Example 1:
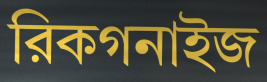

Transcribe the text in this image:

রিকগনাইজ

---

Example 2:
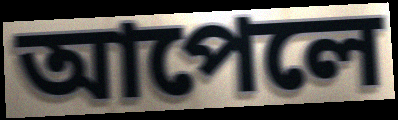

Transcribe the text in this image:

আপেলে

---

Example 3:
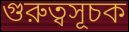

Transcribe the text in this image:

গুরুত্বসূচক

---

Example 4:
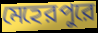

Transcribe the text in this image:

মেহেরপুরে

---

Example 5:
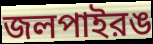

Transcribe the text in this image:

জলপাইরঙ